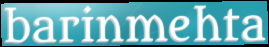
barinmehta